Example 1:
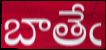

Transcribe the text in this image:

బాతేఁ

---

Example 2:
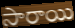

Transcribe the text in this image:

సారాయి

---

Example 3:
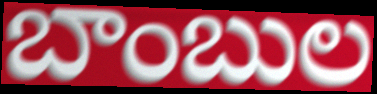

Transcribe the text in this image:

బాంబుల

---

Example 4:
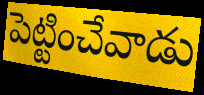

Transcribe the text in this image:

పెట్టించేవాడు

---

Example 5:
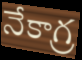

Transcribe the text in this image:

నేకాగ్ర